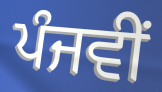
ਪੰਜਵੀਂ